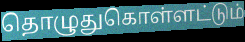
தொழுதுகொள்ளட்டும்